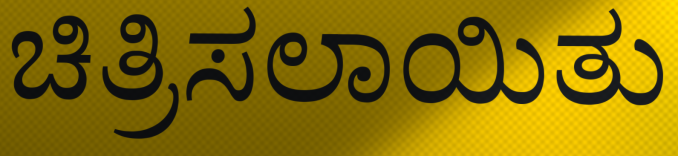
ಚಿತ್ರಿಸಲಾಯಿತು